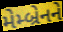
મેમ્બ્રેનને